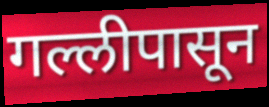
गल्लीपासून